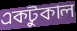
একটুকাল